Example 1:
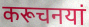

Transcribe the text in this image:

करूचनयां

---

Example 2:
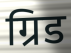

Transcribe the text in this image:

ग्रिड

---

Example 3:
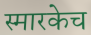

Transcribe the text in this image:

स्मारकेच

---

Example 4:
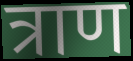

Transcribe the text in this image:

त्राण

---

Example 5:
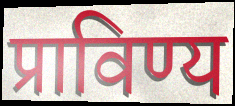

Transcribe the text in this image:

प्राविण्य